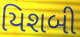
યિશબી